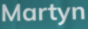
Martyn